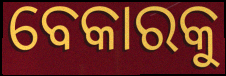
ବେକାରକୁ